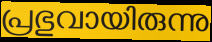
പ്രഭുവായിരുന്നു